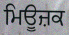
ਮਿਊਜ਼ਕ